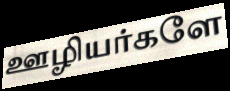
ஊழியர்களே